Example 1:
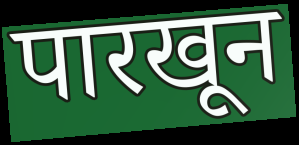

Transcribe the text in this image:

पारखून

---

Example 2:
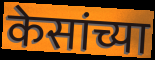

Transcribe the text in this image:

केसांच्या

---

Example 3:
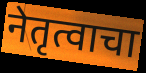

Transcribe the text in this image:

नेतृत्वाचा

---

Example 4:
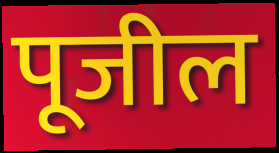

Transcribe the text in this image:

पूजील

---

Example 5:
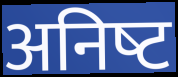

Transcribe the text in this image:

अनिष्‍ट